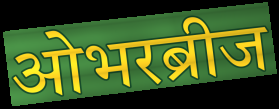
ओभरब्रीज